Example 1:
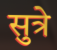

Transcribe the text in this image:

सुत्रे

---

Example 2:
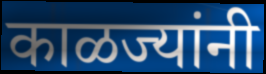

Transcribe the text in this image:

काळज्यांनी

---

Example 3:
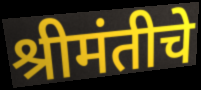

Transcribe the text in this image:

श्रीमंतीचे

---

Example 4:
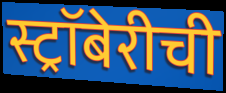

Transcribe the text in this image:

स्ट्रॉबेरीची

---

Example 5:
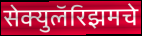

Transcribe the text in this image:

सेक्युलॅरिझमचे